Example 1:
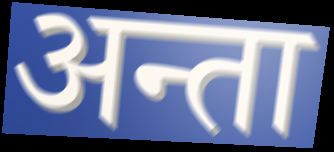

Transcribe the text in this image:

अन्ता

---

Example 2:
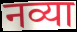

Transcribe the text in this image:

नव्‍या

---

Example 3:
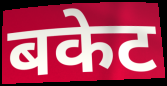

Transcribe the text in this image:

बकेट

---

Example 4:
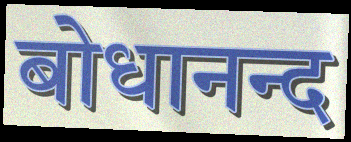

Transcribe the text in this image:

बोधानन्द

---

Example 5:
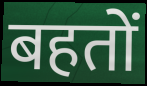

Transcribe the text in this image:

बहतों